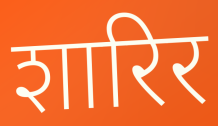
शारिर